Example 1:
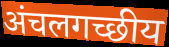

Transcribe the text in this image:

अंचलगच्छीय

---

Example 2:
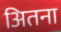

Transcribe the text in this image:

अितना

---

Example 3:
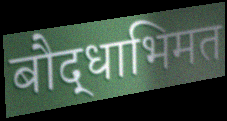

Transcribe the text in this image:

बौद्धाभिमत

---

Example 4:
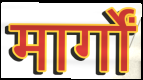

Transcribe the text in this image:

मार्गोँ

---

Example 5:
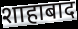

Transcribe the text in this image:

शाहाबाद